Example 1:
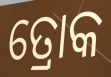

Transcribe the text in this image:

ତ୍ରୋକ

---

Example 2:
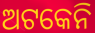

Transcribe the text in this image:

ଅଟକେନି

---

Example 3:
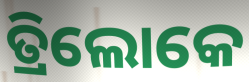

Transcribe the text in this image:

ତ୍ରିଲୋକେ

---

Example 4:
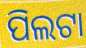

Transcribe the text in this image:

ପିଲଟା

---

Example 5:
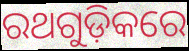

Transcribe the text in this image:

ରଥଗୁଡ଼ିକରେ